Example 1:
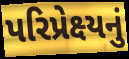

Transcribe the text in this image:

પરિપ્રેક્ષ્યનું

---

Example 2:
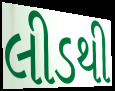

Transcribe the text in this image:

લીડથી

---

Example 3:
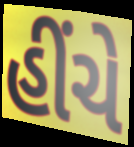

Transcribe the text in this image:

હીંચે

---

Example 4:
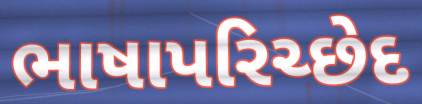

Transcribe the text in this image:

ભાષાપરિચ્છેદ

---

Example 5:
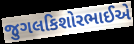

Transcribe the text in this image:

જુગલકિશોરભાઈએ